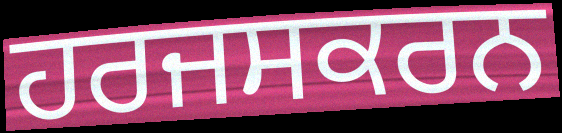
ਹਰਜਸਕਰਨ